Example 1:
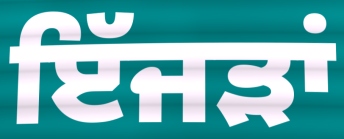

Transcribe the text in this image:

ਇੱਜੜਾਂ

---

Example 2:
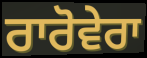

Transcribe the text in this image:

ਰਾਰੋਵੇਰਾ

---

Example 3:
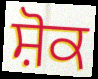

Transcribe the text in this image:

ਸ਼ੋਕ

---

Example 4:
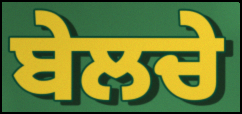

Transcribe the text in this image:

ਬੇਲਚੇ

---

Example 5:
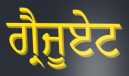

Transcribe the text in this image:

ਗ੍ਰੈਜੂਏਟ